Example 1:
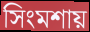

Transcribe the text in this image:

সিংমশায়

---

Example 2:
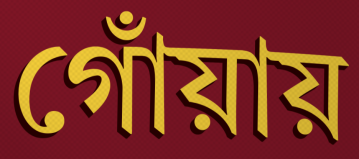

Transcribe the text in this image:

গোঁয়ায়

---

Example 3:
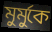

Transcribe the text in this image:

মুর্মুকে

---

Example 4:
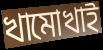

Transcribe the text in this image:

খামোখাই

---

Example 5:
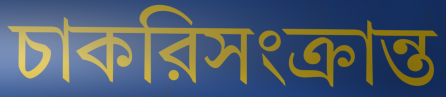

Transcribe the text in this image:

চাকরিসংক্রান্ত